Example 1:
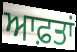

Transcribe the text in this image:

ਆਫ਼ਤਾਂ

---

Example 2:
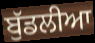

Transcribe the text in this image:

ਬੁੱਡਲੀਆ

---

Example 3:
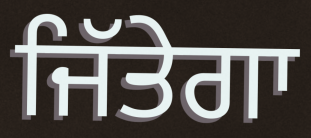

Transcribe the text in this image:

ਜਿੱਤੇਗਾ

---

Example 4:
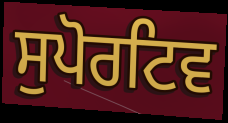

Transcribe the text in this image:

ਸੁਪੋਰਟਿਵ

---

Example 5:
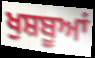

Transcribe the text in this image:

ਖੁਸ਼ਬੂਆਂ